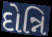
દોન્નિ